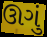
ઊગું